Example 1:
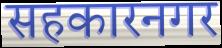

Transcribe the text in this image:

सहकारनगर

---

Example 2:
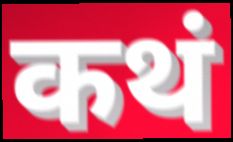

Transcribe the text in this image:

कथं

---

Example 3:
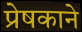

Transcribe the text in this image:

प्रेषकाने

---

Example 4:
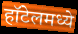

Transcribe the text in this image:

हॉटेलमध्ये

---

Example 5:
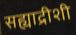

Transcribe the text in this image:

सह्याद्रीशी